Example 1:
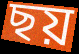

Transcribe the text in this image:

ছয়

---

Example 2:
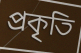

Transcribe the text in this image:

প্রকৃতি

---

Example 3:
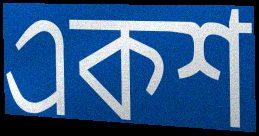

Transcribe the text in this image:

একশ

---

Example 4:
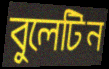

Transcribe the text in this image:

বুলেটিন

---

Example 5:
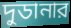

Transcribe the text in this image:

দুডানার